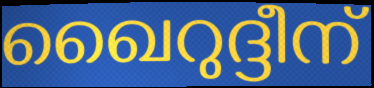
ഖൈറുദ്ദീന്